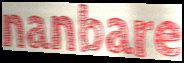
nanbare